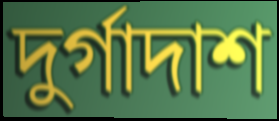
দুর্গাদাশ